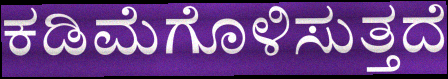
ಕಡಿಮೆಗೊಳಿಸುತ್ತದೆ